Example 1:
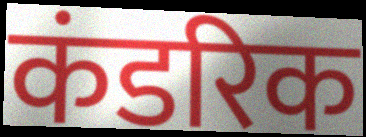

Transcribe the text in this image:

कंडरिक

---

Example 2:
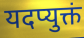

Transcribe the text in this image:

यदप्युक्तं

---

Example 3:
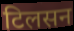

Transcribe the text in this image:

टिलसन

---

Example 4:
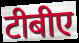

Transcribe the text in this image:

टीबीए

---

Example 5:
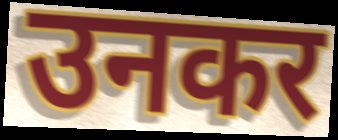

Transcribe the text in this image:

उनकर